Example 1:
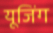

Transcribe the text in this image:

यूजिंग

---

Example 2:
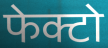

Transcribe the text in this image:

फेक्टो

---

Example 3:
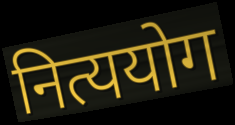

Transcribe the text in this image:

नित्ययोग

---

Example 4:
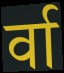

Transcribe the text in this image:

र्वा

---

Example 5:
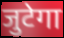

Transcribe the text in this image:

जुटेगा